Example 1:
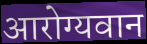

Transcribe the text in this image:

आरोग्यवान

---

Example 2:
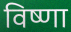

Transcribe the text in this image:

विष्णा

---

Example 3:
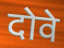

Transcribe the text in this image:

दोवे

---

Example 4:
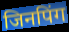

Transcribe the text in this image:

जिनपिंग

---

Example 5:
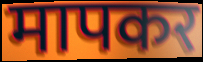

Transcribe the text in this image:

मापकर